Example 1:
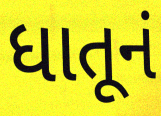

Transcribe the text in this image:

ધાતૂનં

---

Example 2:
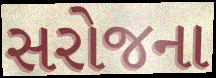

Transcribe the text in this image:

સરોજના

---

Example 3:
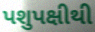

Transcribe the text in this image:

પશુપક્ષીથી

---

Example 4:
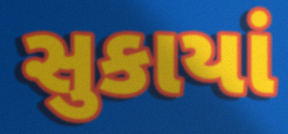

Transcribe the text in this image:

સુકાયાં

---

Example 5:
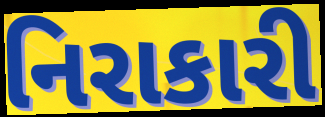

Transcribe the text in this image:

નિરાકારી